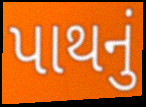
પાથનું